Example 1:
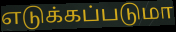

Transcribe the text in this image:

எடுக்கப்படுமா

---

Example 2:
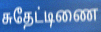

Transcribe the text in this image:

சுதேட்டிணை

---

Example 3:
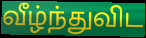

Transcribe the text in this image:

வீழ்ந்துவிட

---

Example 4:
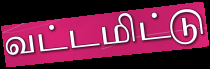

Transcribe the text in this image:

வட்டமிட்டு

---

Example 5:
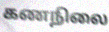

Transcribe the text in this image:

கணநிலை